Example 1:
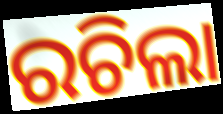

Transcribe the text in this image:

ରଚିଲା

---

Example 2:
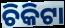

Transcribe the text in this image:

ଚିକିଟା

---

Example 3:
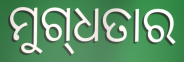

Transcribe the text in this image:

ମୁଗ୍‍ଧତାର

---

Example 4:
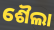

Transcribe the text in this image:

ଶୈଲା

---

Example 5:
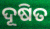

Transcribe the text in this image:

ଦୂଷିତ